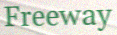
Freeway